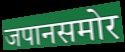
जपानसमोर